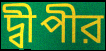
দ্বীপীর